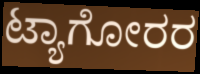
ಟ್ಯಾಗೋರರ